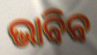
ଭାବିବ